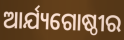
ଆର୍ଯ୍ୟଗୋଷ୍ଠୀର